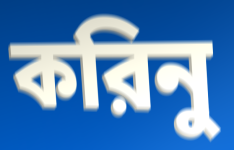
করিনু